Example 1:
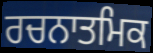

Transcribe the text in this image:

ਰਚਨਾਤਮਿਕ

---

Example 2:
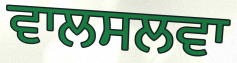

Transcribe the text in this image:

ਵਾਲਸਲਵਾ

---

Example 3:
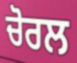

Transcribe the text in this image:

ਚੋਰਲ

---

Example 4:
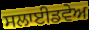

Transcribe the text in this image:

ਸਲਾਈਡਵੇਅ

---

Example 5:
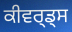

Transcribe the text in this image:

ਕੀਵਰ੍ਡ੍ਸ